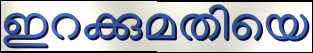
ഇറക്കുമതിയെ